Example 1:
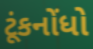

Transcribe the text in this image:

ટૂંકનોંધો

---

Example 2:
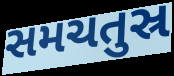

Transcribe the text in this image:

સમચતુસ્ર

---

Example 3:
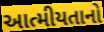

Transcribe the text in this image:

આત્મીયતાનો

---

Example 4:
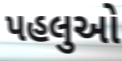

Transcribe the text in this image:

પહલુઓ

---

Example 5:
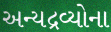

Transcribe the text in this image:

અન્યદ્રવ્યોના